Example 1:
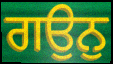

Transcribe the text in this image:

ਗਉਨੁ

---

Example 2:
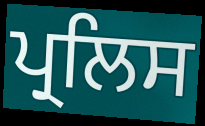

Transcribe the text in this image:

ਪ੍ਰਲਿਸ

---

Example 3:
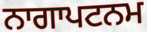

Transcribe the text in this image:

ਨਾਗਾਪਟਨਮ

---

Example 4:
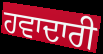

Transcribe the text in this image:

ਹਵਾਦਾਰੀ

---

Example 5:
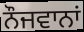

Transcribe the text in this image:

ਨੌਜਵਾਨਾਂ